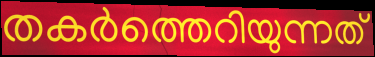
തകർത്തെറിയുന്നത്